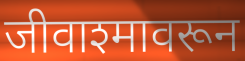
जीवाश्मावरून